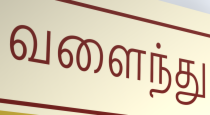
வளைந்து